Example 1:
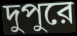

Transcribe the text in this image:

দুপুরে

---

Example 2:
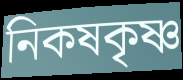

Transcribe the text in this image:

নিকষকৃষ্ণ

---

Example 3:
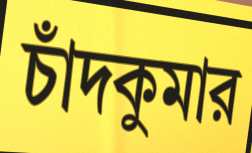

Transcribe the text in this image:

চাঁদকুমার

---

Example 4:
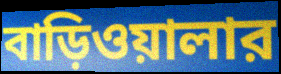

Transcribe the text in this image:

বাড়িওয়ালার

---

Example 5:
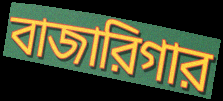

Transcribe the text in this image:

বাজারিগার